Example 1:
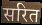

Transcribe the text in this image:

सरित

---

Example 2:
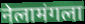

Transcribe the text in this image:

नेलामंगला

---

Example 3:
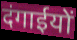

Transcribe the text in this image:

दंगाईयों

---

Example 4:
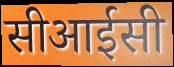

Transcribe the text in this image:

सीआईसी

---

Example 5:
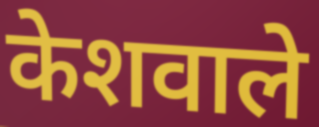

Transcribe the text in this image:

केशवाले